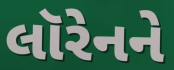
લૉરેનને